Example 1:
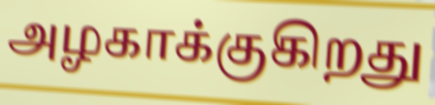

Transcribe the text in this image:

அழகாக்குகிறது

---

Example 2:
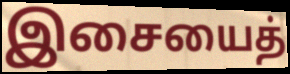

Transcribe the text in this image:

இசையைத்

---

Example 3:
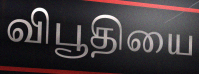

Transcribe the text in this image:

விபூதியை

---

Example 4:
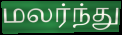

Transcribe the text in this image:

மலர்ந்து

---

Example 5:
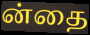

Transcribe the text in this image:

ன்தை